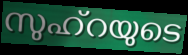
സുഹ്റയുടെ